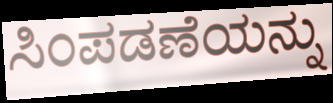
ಸಿಂಪಡಣೆಯನ್ನು